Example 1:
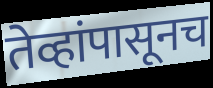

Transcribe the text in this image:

तेव्हांपासूनच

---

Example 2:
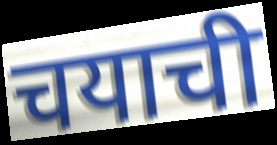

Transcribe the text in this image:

चयाची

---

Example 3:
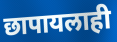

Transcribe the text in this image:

छापायलाही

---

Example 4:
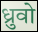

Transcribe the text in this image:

ध्रुवो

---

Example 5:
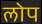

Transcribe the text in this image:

लोप